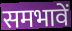
समभावें